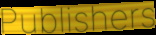
Publishers